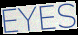
EYES